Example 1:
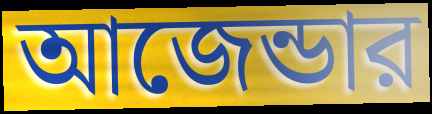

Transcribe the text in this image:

আজেন্ডার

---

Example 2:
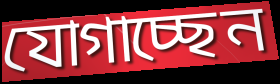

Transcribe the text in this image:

যোগাচ্ছেন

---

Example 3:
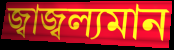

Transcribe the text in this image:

জ্বাজ্বল্যমান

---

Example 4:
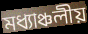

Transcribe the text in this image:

মধ্যাঞ্চলীয়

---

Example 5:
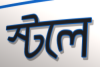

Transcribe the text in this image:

স্টলে